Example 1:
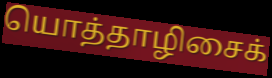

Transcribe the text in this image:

யொத்தாழிசைக்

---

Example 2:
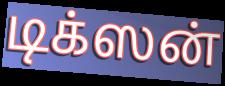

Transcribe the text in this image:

டிக்ஸன்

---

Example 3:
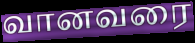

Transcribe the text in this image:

வானவரை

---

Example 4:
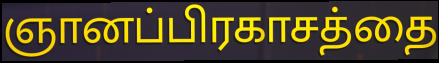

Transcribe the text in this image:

ஞானப்பிரகாசத்தை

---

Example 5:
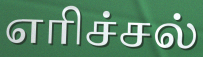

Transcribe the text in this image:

எரிச்சல்